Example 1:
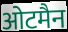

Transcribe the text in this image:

ओटमैन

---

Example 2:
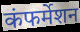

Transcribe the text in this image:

कंफर्मेशन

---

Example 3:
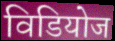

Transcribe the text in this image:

विडियोज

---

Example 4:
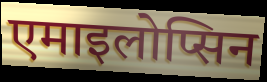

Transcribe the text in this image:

एमाइलोप्सिन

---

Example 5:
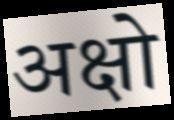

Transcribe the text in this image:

अक्षो